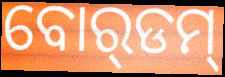
ବୋର୍‌ଡମ୍